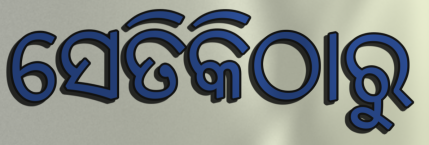
ସେତିକିଠାରୁ